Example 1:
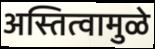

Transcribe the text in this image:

अस्तित्वामुळे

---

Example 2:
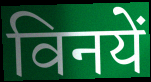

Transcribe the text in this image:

विनयें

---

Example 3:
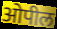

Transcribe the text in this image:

ओपील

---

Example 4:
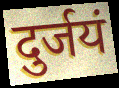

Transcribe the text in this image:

दुर्जयं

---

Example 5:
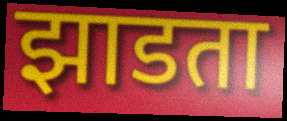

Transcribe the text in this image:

झाडता